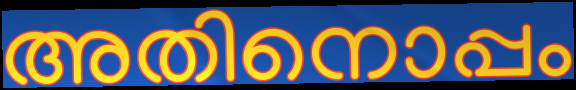
അതിനൊപ്പം